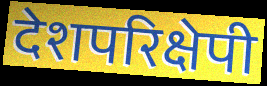
देशपरिक्षेपी